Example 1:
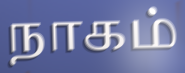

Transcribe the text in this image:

நாகம்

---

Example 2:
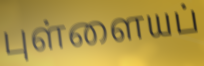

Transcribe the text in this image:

புள்ளையப்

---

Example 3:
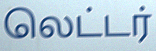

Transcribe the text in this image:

லெட்டர்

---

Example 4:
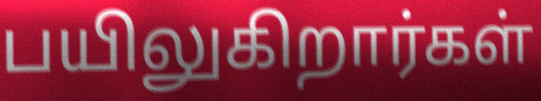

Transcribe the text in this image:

பயிலுகிறார்கள்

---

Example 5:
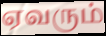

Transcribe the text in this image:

ஏவரும்